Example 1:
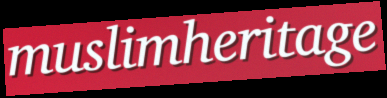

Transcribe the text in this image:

muslimheritage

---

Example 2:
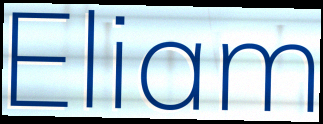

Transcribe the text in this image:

Eliam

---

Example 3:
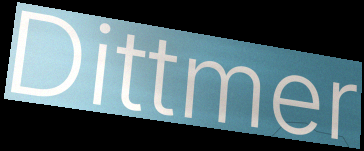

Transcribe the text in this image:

Dittmer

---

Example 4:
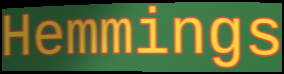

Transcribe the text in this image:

Hemmings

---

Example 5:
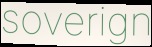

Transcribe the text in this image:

soverign